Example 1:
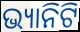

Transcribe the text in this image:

ଭ୍ୟାନିଟି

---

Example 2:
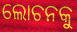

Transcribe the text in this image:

ଲୋଚନକୁ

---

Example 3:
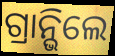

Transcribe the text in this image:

ଗ୍ରାନ୍ଭିଲେ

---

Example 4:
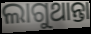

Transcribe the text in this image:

ଲାଗୁଥାନ୍ତା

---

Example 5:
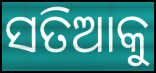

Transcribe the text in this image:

ସତିଆକୁ